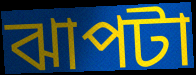
ঝাপটা